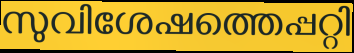
സുവിശേഷത്തെപ്പറ്റി